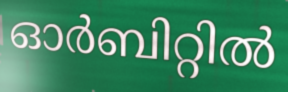
ഓർബിറ്റിൽ